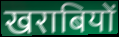
खराबियों